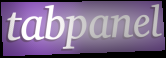
tabpanel